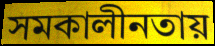
সমকালীনতায়